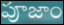
పూజాం